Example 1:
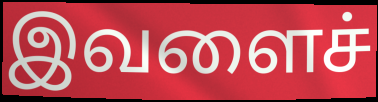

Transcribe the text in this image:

இவளைச்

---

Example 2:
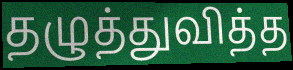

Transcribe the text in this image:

தழுத்துவித்த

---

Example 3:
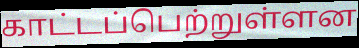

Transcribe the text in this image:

காட்டப்பெற்றுள்ளன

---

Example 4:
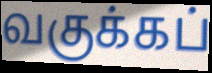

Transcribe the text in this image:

வகுக்கப்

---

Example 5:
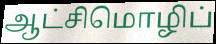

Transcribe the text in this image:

ஆட்சிமொழிப்